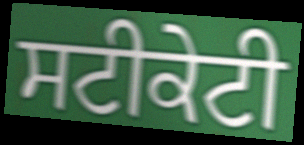
ਸਟੀਕੇਟੀ